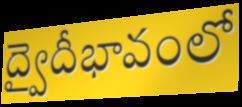
ద్వైదీభావంలో